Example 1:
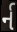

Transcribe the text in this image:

ર્ન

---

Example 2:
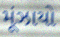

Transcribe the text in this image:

મૂંઝાયો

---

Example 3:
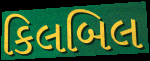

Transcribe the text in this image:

કિલબિલ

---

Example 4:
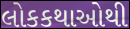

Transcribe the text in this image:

લોકકથાઓથી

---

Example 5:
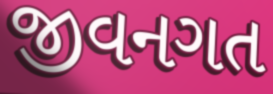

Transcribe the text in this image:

જીવનગત